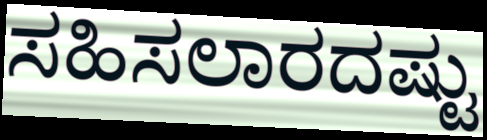
ಸಹಿಸಲಾರದಷ್ಟು